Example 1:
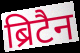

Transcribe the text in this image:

ब्रिटैन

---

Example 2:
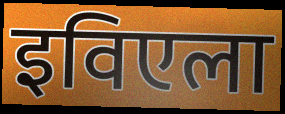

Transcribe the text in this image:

इविएला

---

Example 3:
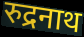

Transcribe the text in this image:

रुद्रनाथ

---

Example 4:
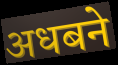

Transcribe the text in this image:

अधबने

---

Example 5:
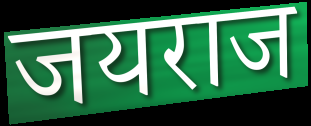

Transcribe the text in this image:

जयराज